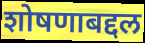
शोषणाबद्दल